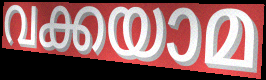
വക്കയാമ